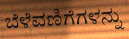
ಬೆಳೆವಣಿಗೆಗಳನ್ನು